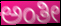
ಅಂತೀ